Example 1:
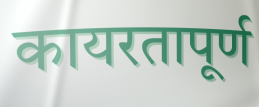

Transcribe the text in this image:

कायरतापूर्ण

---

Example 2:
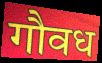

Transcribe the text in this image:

गौवध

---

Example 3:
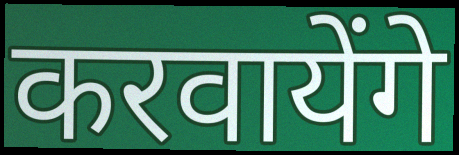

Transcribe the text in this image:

करवायेंगे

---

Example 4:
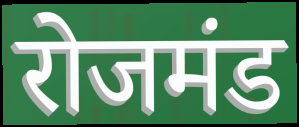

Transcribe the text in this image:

रोजमंड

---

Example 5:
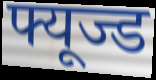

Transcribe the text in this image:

फ्यूज्ड